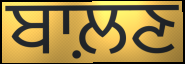
ਬਾਲ਼ਣ